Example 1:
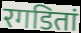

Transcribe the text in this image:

रगडितां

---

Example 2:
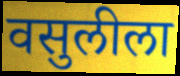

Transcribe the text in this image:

वसुलीला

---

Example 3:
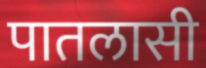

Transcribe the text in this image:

पातलासी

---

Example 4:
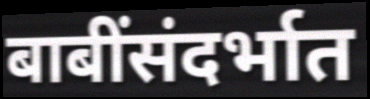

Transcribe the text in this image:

बाबींसंदर्भात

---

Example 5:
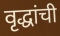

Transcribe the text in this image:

वृद्धांची